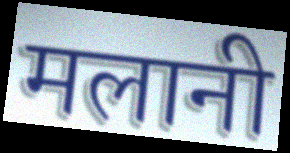
मलानी